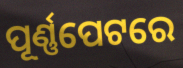
ପୂର୍ଣ୍ଣପେଟରେ